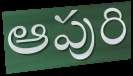
ఆపురి